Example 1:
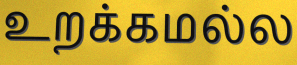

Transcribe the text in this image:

உறக்கமல்ல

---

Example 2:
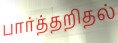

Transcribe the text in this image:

பார்த்தறிதல்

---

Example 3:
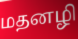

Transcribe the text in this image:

மதனழி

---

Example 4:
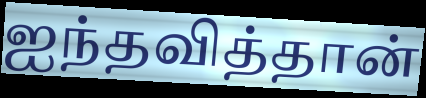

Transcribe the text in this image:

ஐந்தவித்தான்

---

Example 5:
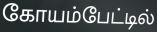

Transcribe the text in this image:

கோயம்பேட்டில்